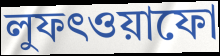
লুফৎওয়াফো